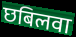
छबिलवा